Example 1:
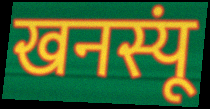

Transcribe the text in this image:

खनस्यूं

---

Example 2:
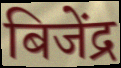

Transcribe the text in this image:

बिजेंद्र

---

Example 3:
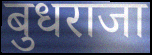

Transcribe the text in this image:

बुधराजा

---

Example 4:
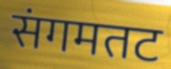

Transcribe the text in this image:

संगमतट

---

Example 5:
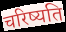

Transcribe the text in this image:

चरिष्यति